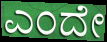
ಎಂದೇ